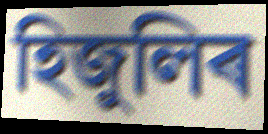
হিজুলিৰ